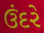
ઉંદરે